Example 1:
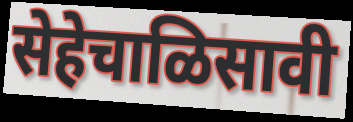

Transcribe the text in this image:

सेहेचाळिसावी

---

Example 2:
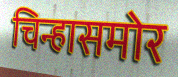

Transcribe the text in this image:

चिन्हासमोर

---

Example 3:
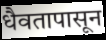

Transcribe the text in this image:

धैवतापासून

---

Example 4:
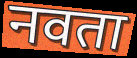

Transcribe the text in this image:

नवता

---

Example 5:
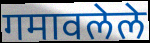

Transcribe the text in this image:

गमावलेले